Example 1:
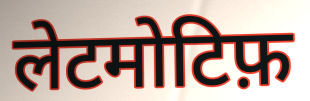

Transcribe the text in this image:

लेटमोटिफ़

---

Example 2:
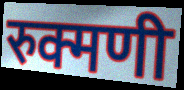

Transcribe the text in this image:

रुक्मणी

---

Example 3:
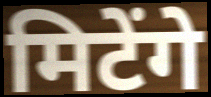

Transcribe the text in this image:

मिटेंगे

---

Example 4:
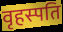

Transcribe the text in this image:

वृहस्पति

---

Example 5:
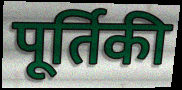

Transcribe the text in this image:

पूर्तिकी